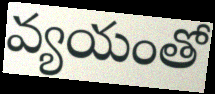
వ్యయంతో